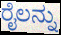
ರೈಲನ್ನು